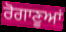
ਰੋਗਾਣੂਆਂ